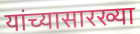
यांच्यासारख्या